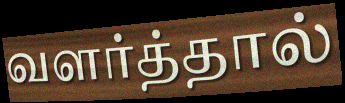
வளர்த்தால்